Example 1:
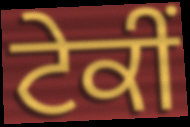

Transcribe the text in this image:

ਟੇਕੀਂ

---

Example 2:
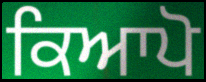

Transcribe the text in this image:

ਕਿਆਪੋ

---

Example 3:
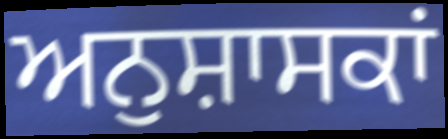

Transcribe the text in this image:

ਅਨੁਸ਼ਾਸਕਾਂ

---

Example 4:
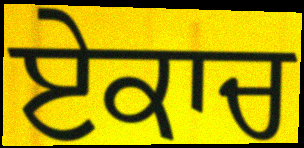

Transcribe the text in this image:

ਏਕਾਚ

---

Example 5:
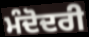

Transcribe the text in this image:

ਮੰਦੋਦਰੀ